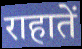
राहातें